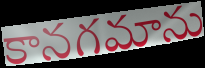
కానగమాను